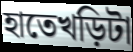
হাতেখড়িটা